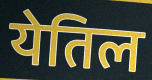
येतिल